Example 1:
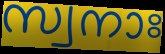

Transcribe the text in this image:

സ്വനാഃ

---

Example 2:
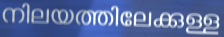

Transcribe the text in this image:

നിലയത്തിലേക്കുള്ള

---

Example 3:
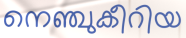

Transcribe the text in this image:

നെഞ്ചുകീറിയ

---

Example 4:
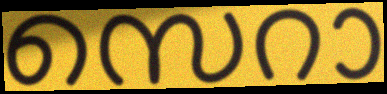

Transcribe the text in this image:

സെറാ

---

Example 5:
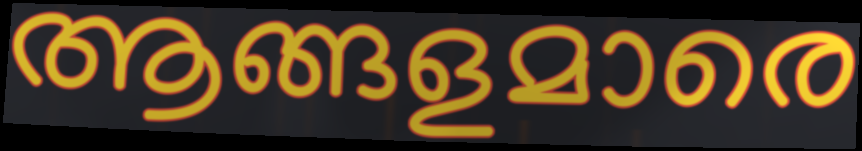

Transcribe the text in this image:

ആങ്ങളമാരെ